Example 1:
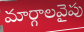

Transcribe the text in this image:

మార్గాలవైపు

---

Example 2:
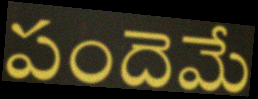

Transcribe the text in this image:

పందెమే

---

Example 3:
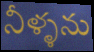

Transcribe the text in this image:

నీళ్ళను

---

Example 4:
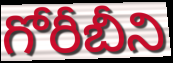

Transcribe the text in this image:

గోరీబీని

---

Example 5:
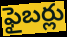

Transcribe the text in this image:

ఫైబర్లు